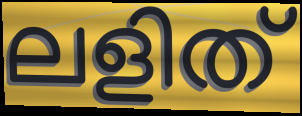
ലളിത്